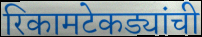
रिकामटेकड्यांची